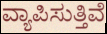
ವ್ಯಾಪಿಸುತ್ತಿವೆ